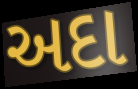
અદા